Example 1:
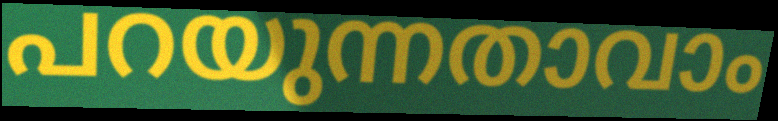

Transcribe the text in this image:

പറയുന്നതാവാം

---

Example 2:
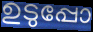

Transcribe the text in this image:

ഉടുപ്പോ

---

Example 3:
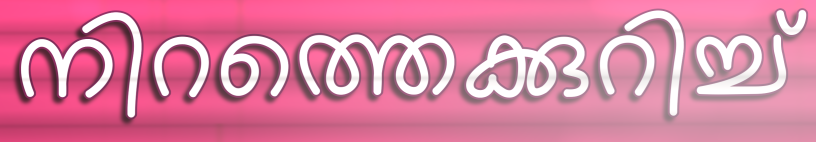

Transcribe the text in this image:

നിറത്തെക്കുറിച്ച്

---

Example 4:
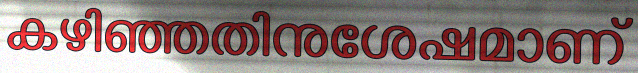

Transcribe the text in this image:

കഴിഞ്ഞതിനുശേഷമാണ്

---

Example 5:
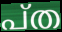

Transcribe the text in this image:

പ്‌ത